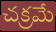
చక్రమే